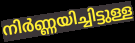
നിർണ്ണയിച്ചിട്ടുള്ള